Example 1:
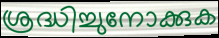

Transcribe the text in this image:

ശ്രദ്ധിച്ചുനോക്കുക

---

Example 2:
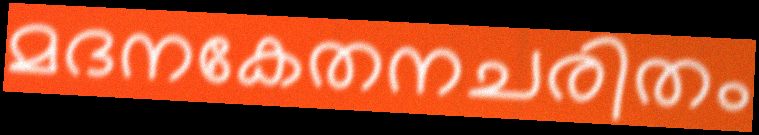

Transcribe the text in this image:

മദനകേതനചരിതം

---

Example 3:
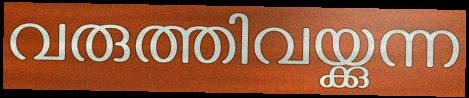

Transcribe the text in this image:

വരുത്തിവയ്ക്കുന്ന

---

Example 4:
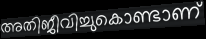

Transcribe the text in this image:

അതിജീവിച്ചുകൊണ്ടാണ്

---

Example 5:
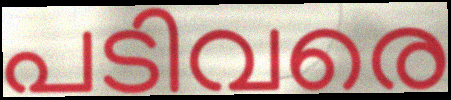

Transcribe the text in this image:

പടിവരെ